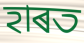
হাৰত